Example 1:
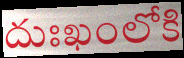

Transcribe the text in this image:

దుఃఖంలోకి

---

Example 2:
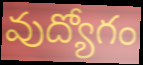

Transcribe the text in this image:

వుద్యోగం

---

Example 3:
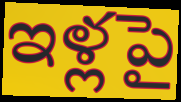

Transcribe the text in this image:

ఇళ్లపై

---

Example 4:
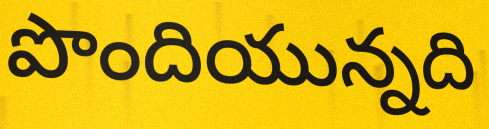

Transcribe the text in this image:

పొందియున్నది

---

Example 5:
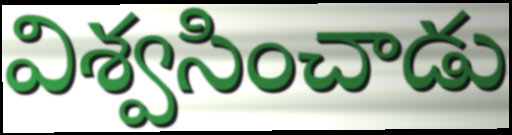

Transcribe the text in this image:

విశ్వసించాడు